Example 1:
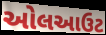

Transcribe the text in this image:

ઓલઆઉટ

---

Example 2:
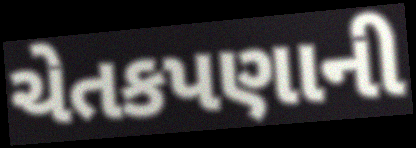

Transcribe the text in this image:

ચેતકપણાની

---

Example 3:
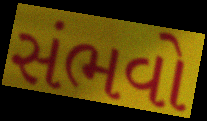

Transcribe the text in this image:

સંભવો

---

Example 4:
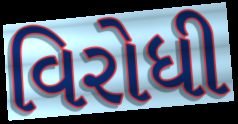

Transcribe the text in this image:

વિરોધી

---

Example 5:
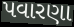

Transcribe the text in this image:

પવારણા